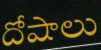
దోషాలు